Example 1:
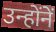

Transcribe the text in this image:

उन्‍होंनें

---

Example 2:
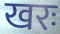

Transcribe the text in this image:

खरः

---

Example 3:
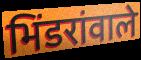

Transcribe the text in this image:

भिंडरांवाले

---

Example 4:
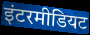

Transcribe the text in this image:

इंटरमीडियट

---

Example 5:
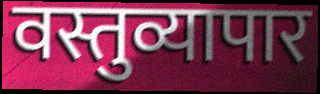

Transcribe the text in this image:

वस्तुव्यापार